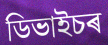
ডিভাইচৰ